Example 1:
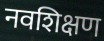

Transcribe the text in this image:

नवशिक्षण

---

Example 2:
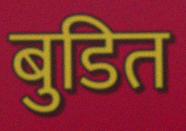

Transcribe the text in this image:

बुडित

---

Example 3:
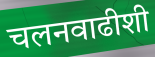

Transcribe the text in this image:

चलनवाढीशी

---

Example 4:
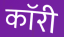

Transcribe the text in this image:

कॉरी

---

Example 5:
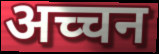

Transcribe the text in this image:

अच्चन